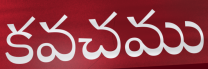
కవచము